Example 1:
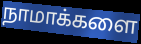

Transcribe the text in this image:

நாமாக்களை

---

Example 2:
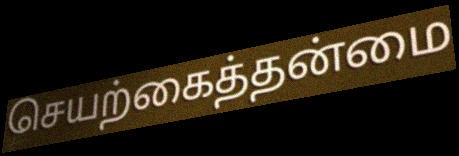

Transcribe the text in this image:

செயற்கைத்தன்மை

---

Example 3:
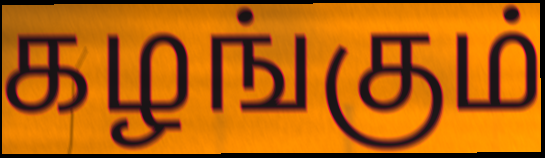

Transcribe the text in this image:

கழங்கும்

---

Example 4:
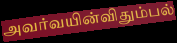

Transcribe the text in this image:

அவர்வயின்விதும்பல்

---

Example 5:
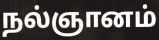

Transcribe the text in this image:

நல்ஞானம்